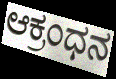
ಆಕ್ರಂಧನ